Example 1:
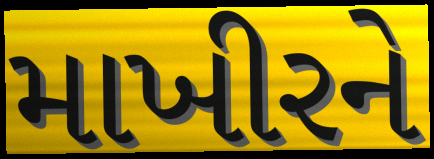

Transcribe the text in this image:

માખીરને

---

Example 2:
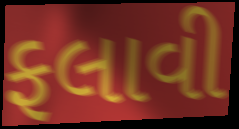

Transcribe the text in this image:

ફલાવી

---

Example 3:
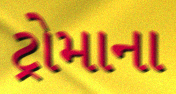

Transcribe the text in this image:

ટ્રોમાના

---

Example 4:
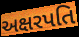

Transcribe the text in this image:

અક્ષરપતિ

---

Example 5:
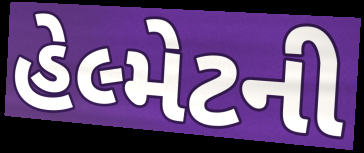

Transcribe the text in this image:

હેલ્મેટની